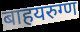
बाहयरुग्ण